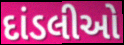
દાંડલીઓ